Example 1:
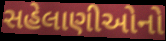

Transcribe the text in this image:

સહેલાણીઓનો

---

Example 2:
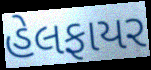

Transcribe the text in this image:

હેલફાયર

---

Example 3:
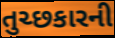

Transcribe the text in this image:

તુચ્છકારની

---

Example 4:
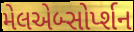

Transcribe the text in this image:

મેલએબ્સોર્પ્શન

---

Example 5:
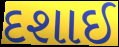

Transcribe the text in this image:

દશાઈ